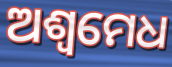
ଅଶ୍ଵମେଧ